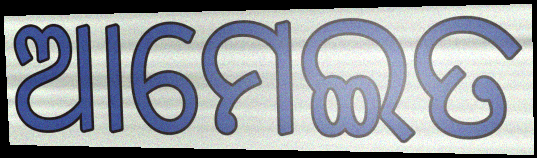
ଆମେଇତ